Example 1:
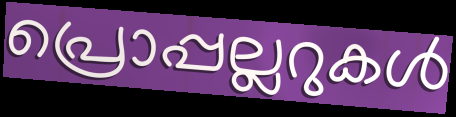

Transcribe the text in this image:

പ്രൊപ്പല്ലറുകൾ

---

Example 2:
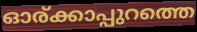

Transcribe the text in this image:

ഓര്ക്കാപ്പുറത്തെ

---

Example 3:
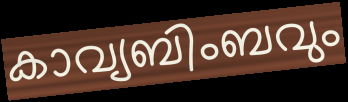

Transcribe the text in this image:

കാവ്യബിംബവും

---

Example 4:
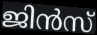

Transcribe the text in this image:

ജിൻസ്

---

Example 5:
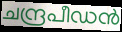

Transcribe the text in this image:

ചന്ദ്രപീഡൻ